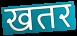
खतर